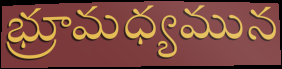
భ్రూమధ్యమున